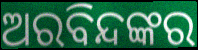
ଅରବିନ୍ଦଙ୍କର